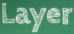
Layer